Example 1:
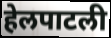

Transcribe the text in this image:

हेलपाटली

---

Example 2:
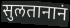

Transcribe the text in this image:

सुलतानानं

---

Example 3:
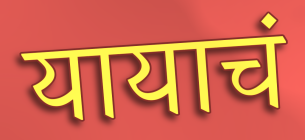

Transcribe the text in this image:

यायाचं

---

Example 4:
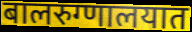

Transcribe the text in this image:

बालरुग्णालयात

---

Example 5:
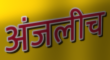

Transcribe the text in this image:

अंजलीच